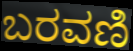
ಬರವಣಿ